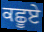
ਕਛੂਏ